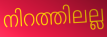
നിറത്തിലല്ല